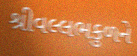
શ્રીવલ્લભકુળને